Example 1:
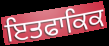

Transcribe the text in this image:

ਇਤਫਾਕਿਕ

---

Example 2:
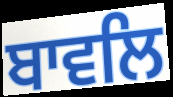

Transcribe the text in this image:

ਬਾਵਲਿ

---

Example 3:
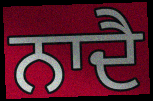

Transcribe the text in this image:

ਨਾਦੈ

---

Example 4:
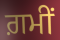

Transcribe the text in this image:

ਗ਼ਮੀਂ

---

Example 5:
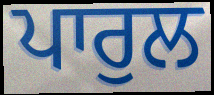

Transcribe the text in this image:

ਪਾਰੁਲ